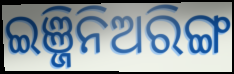
ଇଞ୍ଜିନିଅରିଙ୍ଗ